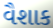
વૈશાક